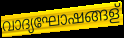
വാദ്യഘോഷങ്ങള്